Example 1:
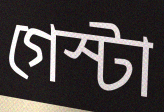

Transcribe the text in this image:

গেস্টা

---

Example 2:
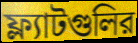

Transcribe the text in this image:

ফ্ল্যাটগুলির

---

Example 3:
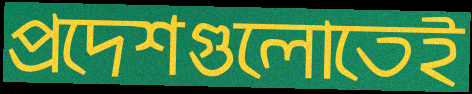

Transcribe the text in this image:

প্রদেশগুলোতেই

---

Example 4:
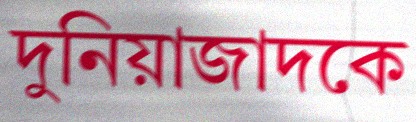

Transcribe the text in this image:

দুনিয়াজাদকে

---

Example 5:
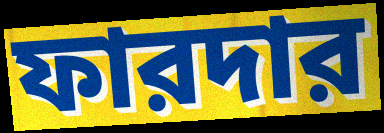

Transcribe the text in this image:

ফারদার